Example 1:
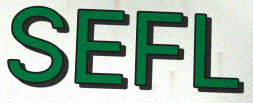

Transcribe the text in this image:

SEFL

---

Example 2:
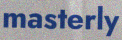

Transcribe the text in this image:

masterly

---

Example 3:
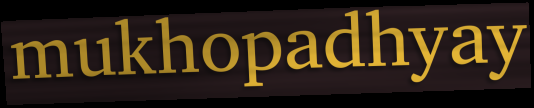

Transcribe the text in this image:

mukhopadhyay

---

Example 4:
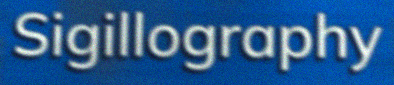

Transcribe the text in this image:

Sigillography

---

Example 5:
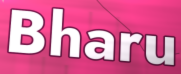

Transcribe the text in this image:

Bharu